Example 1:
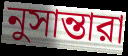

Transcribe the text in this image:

নুসান্তারা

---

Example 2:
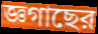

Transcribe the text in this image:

জ্ঞগাছের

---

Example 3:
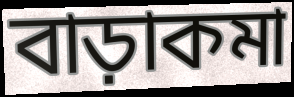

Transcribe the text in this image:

বাড়াকমা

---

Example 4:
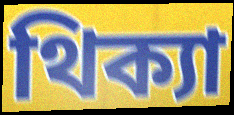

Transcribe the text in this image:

থিক্যা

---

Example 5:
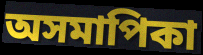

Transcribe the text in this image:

অসমাপিকা